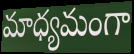
మాధ్యమంగా